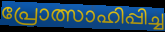
പ്രോത്സാഹിപ്പിച്ച